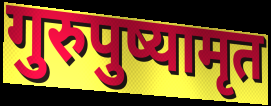
गुरुपुष्यामृत